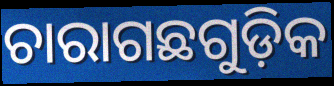
ଚାରାଗଛଗୁଡ଼ିକ